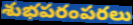
శుభపరంపరలు